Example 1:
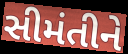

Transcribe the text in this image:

સીમંતીને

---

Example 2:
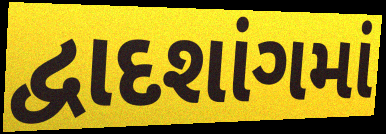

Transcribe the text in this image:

દ્વાદશાંગમાં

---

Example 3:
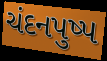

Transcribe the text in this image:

ચંદનપુષ્પ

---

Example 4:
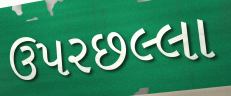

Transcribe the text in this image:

ઉપરછલ્લા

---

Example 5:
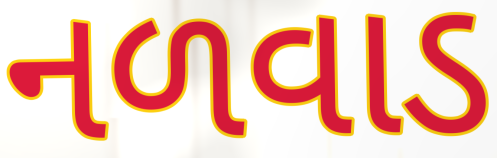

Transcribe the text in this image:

નળવાડ